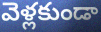
వెళ్లకుండా